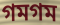
গমগম